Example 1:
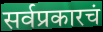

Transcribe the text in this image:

सर्वप्रकारचं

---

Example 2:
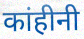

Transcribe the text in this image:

कांहीनी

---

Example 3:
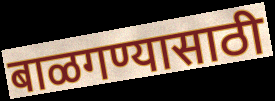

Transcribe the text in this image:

बाळगण्यासाठी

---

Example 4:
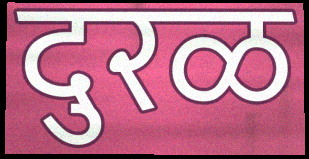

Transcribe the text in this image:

दुरळ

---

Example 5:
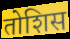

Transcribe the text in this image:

तोशिस